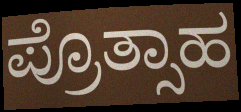
ಪ್ರೊತ್ಸಾಹ